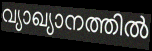
വ്യാഖ്യാനത്തിൽ